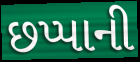
છપ્પાની